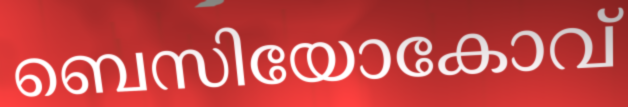
ബെസിയോകോവ്